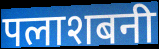
पलाशबनी